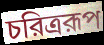
চরিত্ররূপ